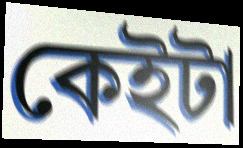
কেইটা